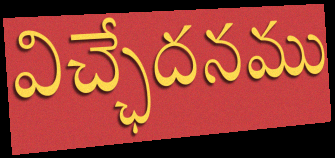
విచ్ఛేదనము